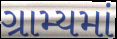
ગ્રામ્યમાં